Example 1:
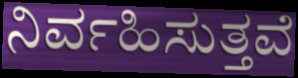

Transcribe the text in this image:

ನಿರ್ವಹಿಸುತ್ತವೆ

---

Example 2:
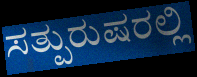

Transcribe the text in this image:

ಸತ್ಪುರುಷರಲ್ಲಿ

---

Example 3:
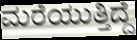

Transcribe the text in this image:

ಮರೆಯುತ್ತಿದ್ದೆ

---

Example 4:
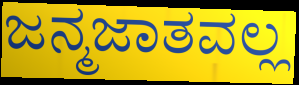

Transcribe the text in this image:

ಜನ್ಮಜಾತವಲ್ಲ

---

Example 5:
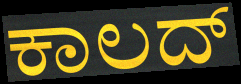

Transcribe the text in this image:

ಕಾಲದ್